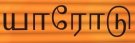
யாரோடு